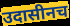
उदासीनच